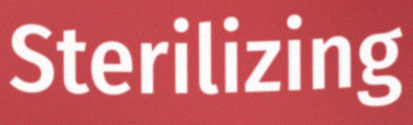
Sterilizing